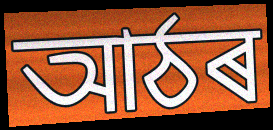
আঠৰ